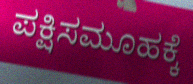
ಪಕ್ಷಿಸಮೂಹಕ್ಕೆ